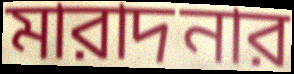
মারাদনার